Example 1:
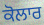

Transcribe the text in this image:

ਕੋਲਾਰ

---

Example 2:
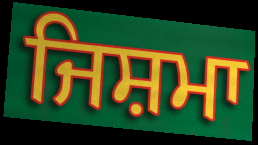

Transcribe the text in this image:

ਜਿਸ਼ਮਾ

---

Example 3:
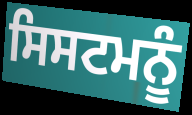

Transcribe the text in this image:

ਸਿਸਟਮਨੂੰ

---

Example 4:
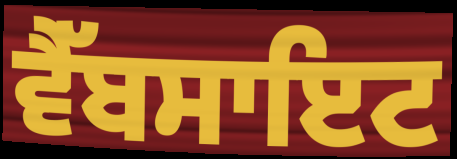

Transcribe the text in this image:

ਵੈੱਬਸਾਇਟ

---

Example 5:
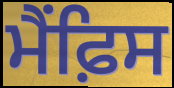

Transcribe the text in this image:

ਮੈਂਫ਼ਿਸ